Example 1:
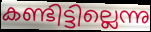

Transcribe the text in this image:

കണ്ടിട്ടില്ലെന്നു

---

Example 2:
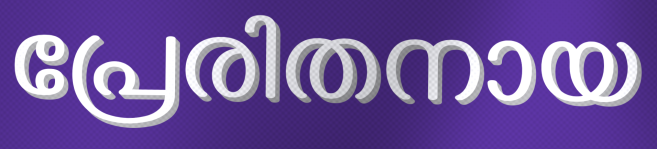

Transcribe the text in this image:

പ്രേരിതനായ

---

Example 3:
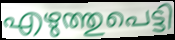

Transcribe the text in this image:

എഴുത്തുപെട്ടി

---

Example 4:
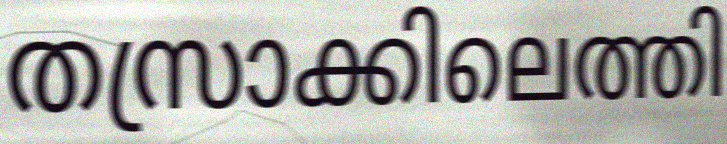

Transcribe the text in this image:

തസ്രാക്കിലെത്തി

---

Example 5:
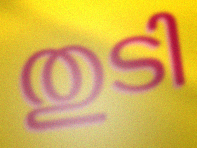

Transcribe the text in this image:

തുടി